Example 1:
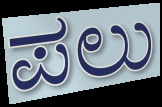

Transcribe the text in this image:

ಪಲು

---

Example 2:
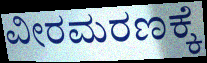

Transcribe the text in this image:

ವೀರಮರಣಕ್ಕೆ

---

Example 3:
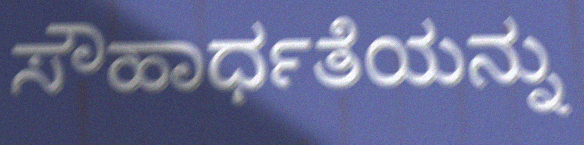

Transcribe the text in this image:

ಸೌಹಾರ್ಧತೆಯನ್ನು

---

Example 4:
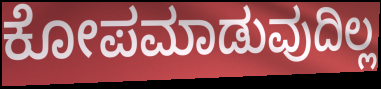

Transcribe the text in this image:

ಕೋಪಮಾಡುವುದಿಲ್ಲ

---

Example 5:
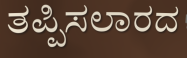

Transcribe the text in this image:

ತಪ್ಪಿಸಲಾರದ